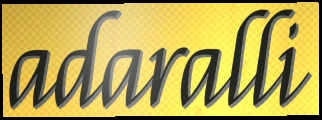
adaralli